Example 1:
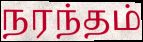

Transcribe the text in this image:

நரந்தம்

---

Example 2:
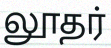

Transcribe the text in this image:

லூதர்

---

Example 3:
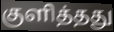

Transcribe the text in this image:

குளித்தது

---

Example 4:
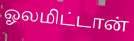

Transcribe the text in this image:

ஓலமிட்டான்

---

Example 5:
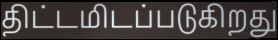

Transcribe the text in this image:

திட்டமிடப்படுகிறது